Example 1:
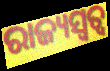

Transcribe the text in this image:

ରାଜ୍ୟସ୍ଵତ୍ଵ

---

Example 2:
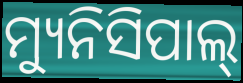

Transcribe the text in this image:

ମ୍ୟୁନିସିପାଲ୍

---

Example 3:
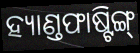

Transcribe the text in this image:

ହ୍ୟାଣ୍ଡଫାଷ୍ଟିଙ୍ଗ୍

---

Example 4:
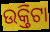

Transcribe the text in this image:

ଉକ୍ତିଟା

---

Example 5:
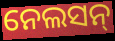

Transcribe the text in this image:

ନେଲସନ୍